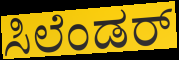
ಸಿಲೆಂಡರ್